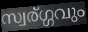
സ്വര്ഗ്ഗവും